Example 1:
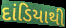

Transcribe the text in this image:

દાંડિયાથી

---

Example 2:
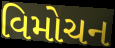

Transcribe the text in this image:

વિમોચન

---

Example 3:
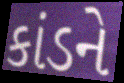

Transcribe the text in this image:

કાંડને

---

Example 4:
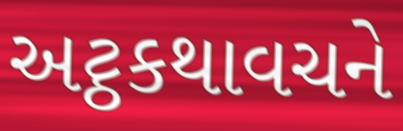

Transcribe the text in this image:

અટ્ઠકથાવચને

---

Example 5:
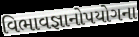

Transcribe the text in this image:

વિભાવજ્ઞાનોપયોગના